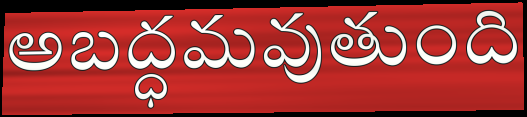
అబద్ధమవుతుంది